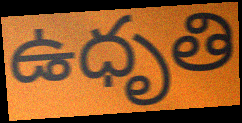
ఉధృతి